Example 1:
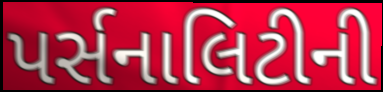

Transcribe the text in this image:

પર્સનાલિટીની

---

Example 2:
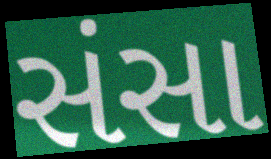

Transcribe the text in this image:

સંસા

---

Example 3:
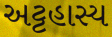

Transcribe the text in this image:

અટ્ટહાસ્ય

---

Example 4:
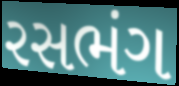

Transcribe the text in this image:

રસભંગ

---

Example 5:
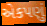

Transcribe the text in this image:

એકપણું